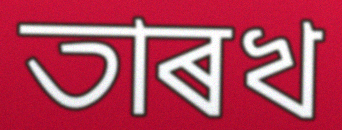
তাৰখ